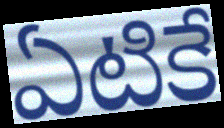
ఏటికే